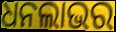
ଧନଲାଭର